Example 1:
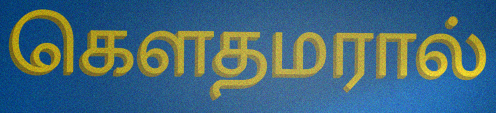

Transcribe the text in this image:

கௌதமரால்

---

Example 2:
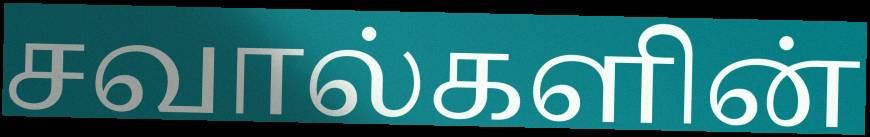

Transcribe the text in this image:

சவால்களின்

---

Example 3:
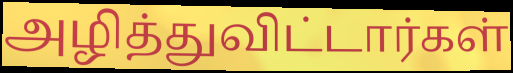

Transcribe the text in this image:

அழித்துவிட்டார்கள்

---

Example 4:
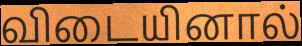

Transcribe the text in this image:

விடையினால்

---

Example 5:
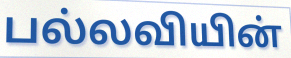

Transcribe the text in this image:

பல்லவியின்